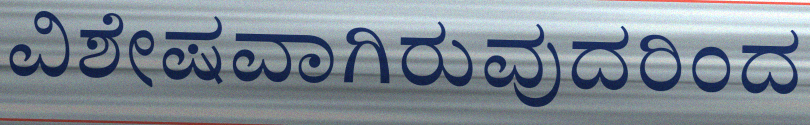
ವಿಶೇಷವಾಗಿರುವುದರಿಂದ